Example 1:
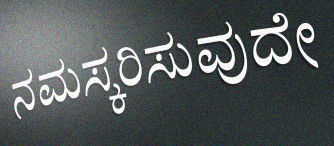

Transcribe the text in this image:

ನಮಸ್ಕರಿಸುವುದೇ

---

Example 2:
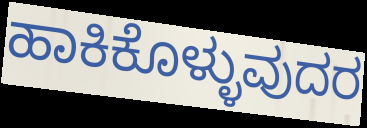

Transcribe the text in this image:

ಹಾಕಿಕೊಳ್ಳುವುದರ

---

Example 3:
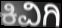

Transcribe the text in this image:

ಕಿವಿಗಿ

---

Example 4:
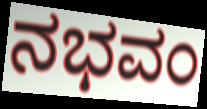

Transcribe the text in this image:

ನಭವಂ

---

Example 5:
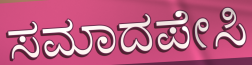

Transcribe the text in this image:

ಸಮಾದಪೇಸಿ